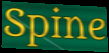
Spine